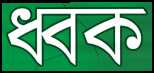
ধ্বক